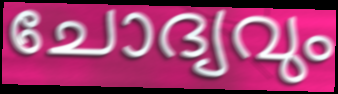
ചോദ്യവും